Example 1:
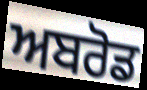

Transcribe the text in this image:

ਅਬਰੋਡ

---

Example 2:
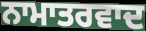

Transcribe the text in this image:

ਨਾਮਾਤਰਵਾਦ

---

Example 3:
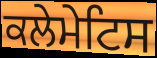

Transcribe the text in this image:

ਕਲੇਮੇਟਿਸ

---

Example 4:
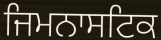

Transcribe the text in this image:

ਜਿਮਨਾਸਟਿਕ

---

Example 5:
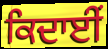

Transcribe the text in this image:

ਕਿਦਾਈਂ